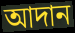
আদান